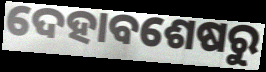
ଦେହାବଶେଷରୁ